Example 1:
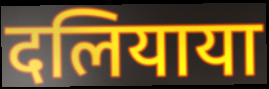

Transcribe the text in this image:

दलियाया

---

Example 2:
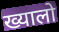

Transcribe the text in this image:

ख्यालो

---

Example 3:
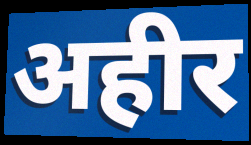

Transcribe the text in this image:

अहीर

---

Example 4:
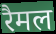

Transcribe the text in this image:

रैमल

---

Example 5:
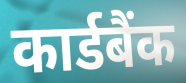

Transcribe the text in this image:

कार्डबैंक